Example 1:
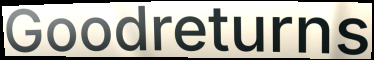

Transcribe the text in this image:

Goodreturns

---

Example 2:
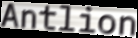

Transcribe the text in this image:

Antlion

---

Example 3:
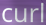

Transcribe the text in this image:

curl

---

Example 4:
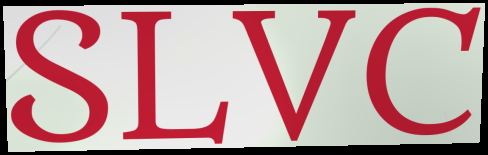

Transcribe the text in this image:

SLVC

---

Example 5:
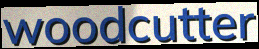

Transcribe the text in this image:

woodcutter